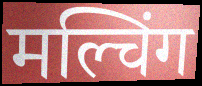
मल्चिंग